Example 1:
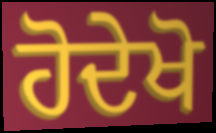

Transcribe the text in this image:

ਹੋਦੇਖੋ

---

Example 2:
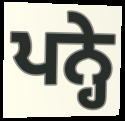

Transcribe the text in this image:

ਪਨ੍ਹੇ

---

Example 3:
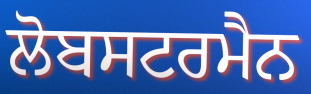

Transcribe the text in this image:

ਲੋਬਸਟਰਮੈਨ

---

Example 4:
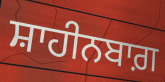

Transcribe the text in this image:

ਸ਼ਾਹੀਨਬਾਗ਼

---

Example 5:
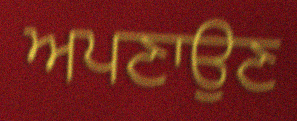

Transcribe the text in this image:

ਅਪਣਾਉਣ